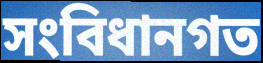
সংবিধানগত